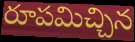
రూపమిచ్చిన